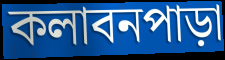
কলাবনপাড়া